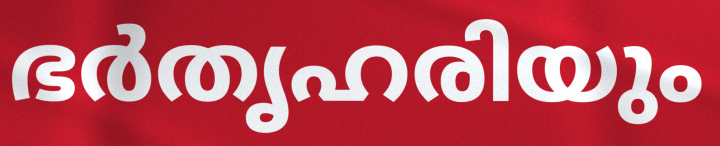
ഭർതൃഹരിയും